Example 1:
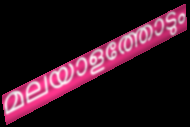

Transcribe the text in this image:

മലയാളത്തോടും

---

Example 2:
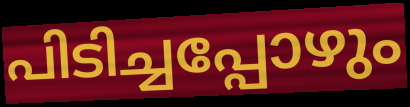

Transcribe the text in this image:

പിടിച്ചപ്പോഴും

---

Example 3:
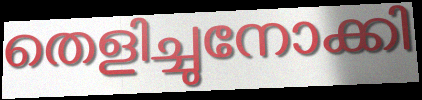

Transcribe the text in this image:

തെളിച്ചുനോക്കി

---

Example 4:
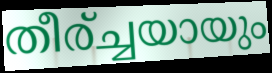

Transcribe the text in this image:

തീര്ച്ചയായും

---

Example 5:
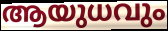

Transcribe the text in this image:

ആയുധവും